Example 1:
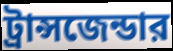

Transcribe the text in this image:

ট্রান্সজেন্ডার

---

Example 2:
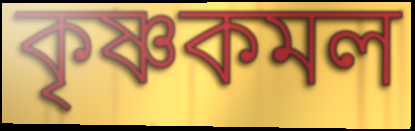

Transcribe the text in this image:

কৃষ্ণকমল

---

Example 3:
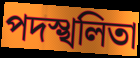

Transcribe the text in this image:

পদস্খলিতা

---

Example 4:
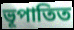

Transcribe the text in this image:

ভূপাতিত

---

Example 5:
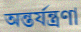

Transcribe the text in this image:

অন্তর্যন্ত্রণা